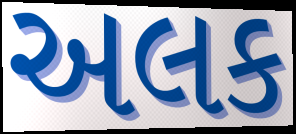
અલક